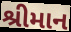
શ્રીમાન